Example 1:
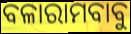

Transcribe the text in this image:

ବଳାରାମବାବୁ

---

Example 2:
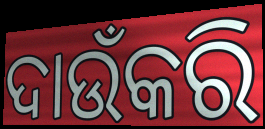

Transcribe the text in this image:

ଦାଉଁକରି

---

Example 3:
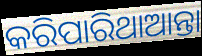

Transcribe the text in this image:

କରିପାରିଥାଆନ୍ତା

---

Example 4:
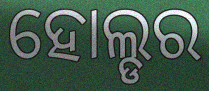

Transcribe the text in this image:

ହୋଲ୍ଡର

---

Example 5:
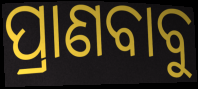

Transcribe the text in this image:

ପ୍ରାଣବାବୁ